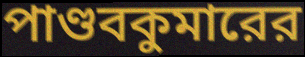
পাণ্ডবকুমারের